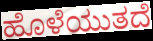
ಹೊಳೆಯುತದೆ